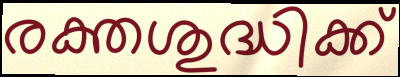
രക്തശുദ്ധിക്ക്